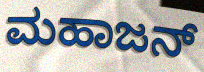
ಮಹಾಜನ್